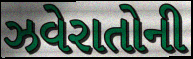
ઝવેરાતોની